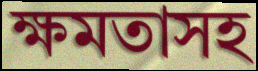
ক্ষমতাসহ